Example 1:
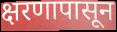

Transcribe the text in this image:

क्षरणापासून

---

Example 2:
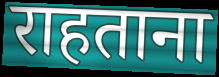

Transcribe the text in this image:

राहताना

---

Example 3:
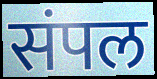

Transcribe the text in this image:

संपल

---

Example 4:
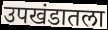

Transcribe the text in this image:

उपखंडातला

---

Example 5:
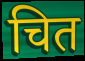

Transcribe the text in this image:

चित